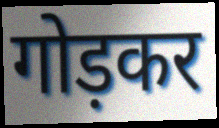
गोड़कर